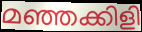
മഞ്ഞക്കിളി